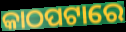
କାଠପଟାରେ